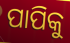
ପାପିକୁ